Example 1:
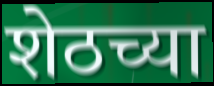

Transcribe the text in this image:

शेठच्या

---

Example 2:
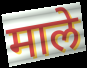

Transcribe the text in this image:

माले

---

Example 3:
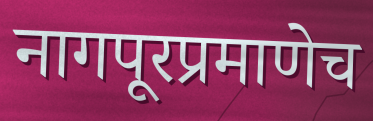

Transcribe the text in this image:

नागपूरप्रमाणेच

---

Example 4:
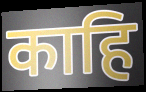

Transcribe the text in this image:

काहि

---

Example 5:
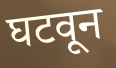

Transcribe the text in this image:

घटवून